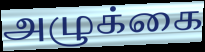
அழுக்கை